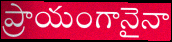
ప్రాయంగానైనా